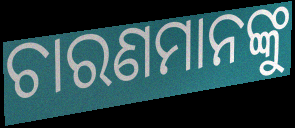
ଚାରଣମାନଙ୍କୁ